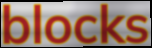
blocks